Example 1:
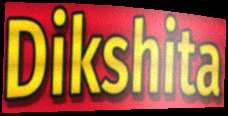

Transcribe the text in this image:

Dikshita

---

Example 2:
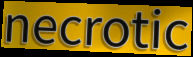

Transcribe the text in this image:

necrotic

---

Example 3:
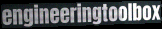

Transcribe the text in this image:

engineeringtoolbox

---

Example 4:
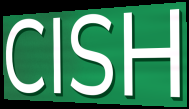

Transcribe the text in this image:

CISH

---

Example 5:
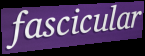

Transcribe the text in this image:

fascicular